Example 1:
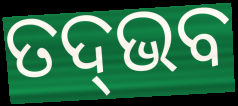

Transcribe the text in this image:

ତଦ୍‌ଭବ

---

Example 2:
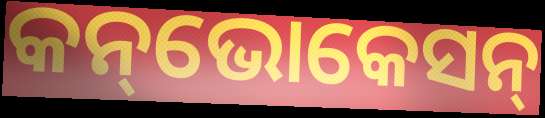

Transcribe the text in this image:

କନ୍‌ଭୋକେସନ୍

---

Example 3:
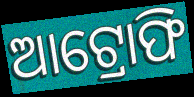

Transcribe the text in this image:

ଆଟ୍ରୋଫି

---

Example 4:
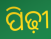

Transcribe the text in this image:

ପିଢ଼ୀ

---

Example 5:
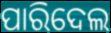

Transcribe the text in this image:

ପାରିଦେଲ